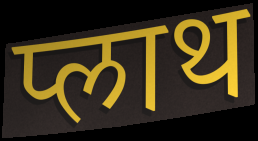
प्लाथ